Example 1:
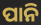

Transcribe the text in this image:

ପାନି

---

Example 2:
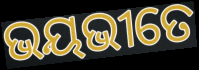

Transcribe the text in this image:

ଭୟଭୀତେ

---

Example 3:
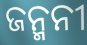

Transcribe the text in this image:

ଜନ୍ମନୀ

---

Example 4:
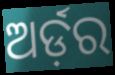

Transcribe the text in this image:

ଅର୍ଡ଼ର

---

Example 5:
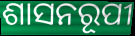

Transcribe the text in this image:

ଶାସନରୂପୀ